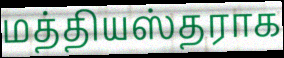
மத்தியஸ்தராக